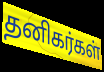
தனிகர்கள்